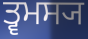
ਤ੍ਵਮਸ੍ਯ